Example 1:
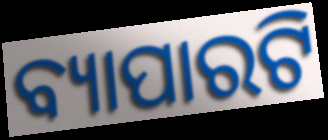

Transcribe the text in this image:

ବ୍ୟାପାରଟି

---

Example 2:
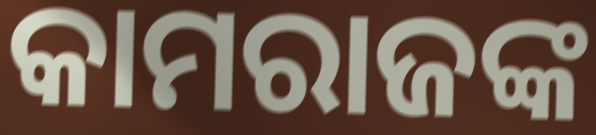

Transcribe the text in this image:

କାମରାଜଙ୍କ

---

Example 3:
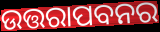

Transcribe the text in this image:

ଉତ୍ତରାପବନର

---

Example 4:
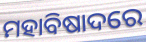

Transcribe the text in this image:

ମହାବିଷାଦରେ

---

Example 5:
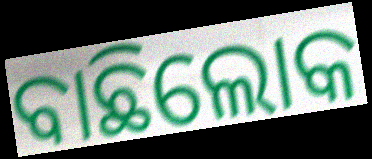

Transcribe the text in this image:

ବାଛିଲୋକ